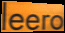
leero